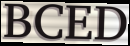
BCED